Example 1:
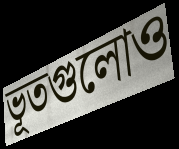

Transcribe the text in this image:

ভূতগুলোও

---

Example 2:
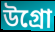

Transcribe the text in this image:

উগ্রো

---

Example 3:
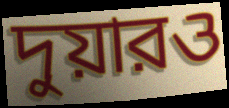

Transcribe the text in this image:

দুয়ারও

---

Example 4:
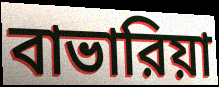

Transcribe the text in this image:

বাভারিয়া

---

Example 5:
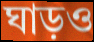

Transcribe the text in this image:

ঘাড়ও